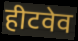
हीटवेव